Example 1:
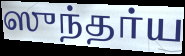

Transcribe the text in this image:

ஸுந்தர்ய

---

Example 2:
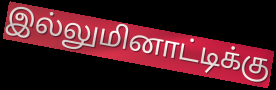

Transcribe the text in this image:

இல்லுமினாட்டிக்கு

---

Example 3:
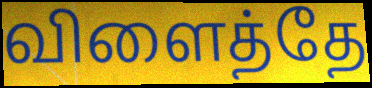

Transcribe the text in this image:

விளைத்தே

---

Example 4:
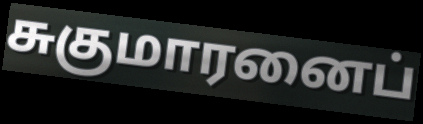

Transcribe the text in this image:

சுகுமாரனைப்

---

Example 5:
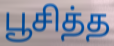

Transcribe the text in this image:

பூசித்த